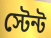
স্টেন্ট